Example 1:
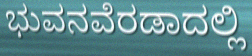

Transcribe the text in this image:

ಭುವನವೆರಡಾದಲ್ಲಿ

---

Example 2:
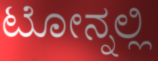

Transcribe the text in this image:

ಟೋನ್ನಲ್ಲಿ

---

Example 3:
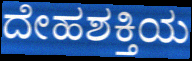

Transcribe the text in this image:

ದೇಹಶಕ್ತಿಯ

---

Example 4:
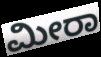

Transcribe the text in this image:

ಮೀರಾ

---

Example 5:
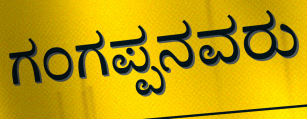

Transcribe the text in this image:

ಗಂಗಪ್ಪನವರು